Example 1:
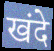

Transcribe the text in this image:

खंदे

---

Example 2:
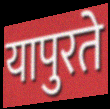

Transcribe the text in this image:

यापुरते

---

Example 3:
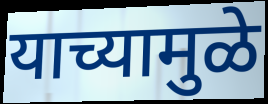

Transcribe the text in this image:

याच्यामुळे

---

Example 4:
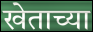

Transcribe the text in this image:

खेताच्या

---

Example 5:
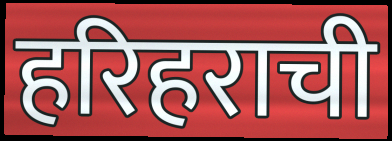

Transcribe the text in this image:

हरिहराची